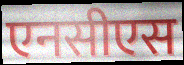
एनसीएस